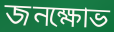
জনক্ষোভ